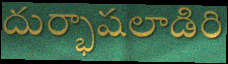
దుర్భాషలాడిరి